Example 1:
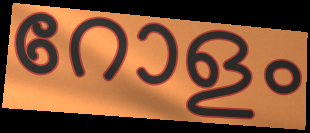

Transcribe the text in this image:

റോളം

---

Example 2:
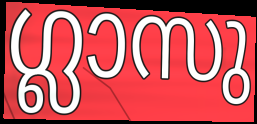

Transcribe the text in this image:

ഗ്ലാസു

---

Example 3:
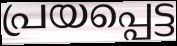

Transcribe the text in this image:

പ്രയപ്പെട്ട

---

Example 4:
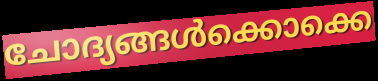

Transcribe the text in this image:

ചോദ്യങ്ങൾക്കൊക്കെ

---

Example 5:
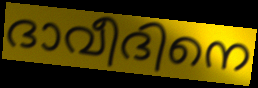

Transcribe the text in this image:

ദാവീദിനെ